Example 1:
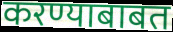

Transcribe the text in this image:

करण्याबाबत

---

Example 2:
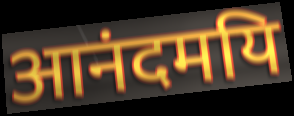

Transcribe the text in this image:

आनंदमयि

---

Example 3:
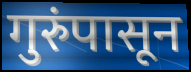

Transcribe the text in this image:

गुरुंपासून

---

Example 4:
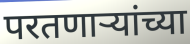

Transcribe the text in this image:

परतणाऱ्यांच्या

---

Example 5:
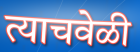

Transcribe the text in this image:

त्याचवेळी